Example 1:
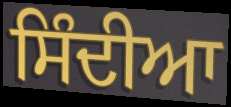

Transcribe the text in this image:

ਸਿੰਦੀਆ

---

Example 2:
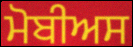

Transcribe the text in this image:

ਮੋਬੀਅਸ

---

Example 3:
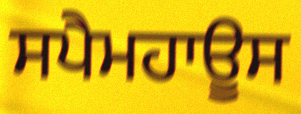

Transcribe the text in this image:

ਸਪੈਮਹਾਊਸ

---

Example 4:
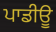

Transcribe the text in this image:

ਪਾਡੀਊ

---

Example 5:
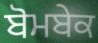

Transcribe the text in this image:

ਬੋਮਬੇਕ